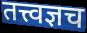
तत्त्वज्ञच